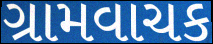
ગ્રામવાચક